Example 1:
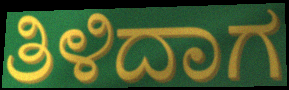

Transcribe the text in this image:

ತಿಳಿದಾಗ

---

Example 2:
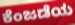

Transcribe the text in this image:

ಕೆಂಜಡೆಯ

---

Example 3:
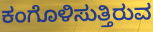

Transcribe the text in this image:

ಕಂಗೊಳಿಸುತ್ತಿರುವ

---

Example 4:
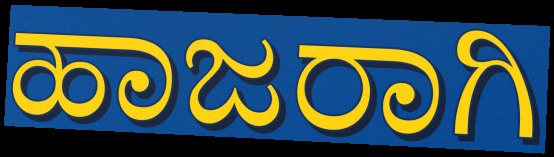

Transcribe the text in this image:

ಹಾಜರಾಗಿ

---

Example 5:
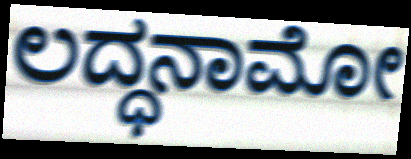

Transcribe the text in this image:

ಲದ್ಧನಾಮೋ